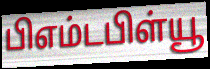
பிஎம்டபிள்யூ